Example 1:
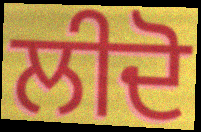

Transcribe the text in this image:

ਲੀਦੋ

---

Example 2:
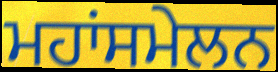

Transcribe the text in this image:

ਮਹਾਂਸਮੇਲਨ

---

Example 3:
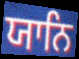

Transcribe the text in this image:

ਯਾਨਿ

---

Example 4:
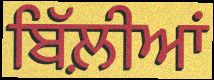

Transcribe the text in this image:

ਬਿੱਲ਼ੀਆਂ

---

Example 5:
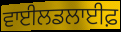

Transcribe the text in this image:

ਵਾਈਲਡਲਾਈਫ਼